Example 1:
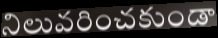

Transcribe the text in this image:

నిలువరించకుండా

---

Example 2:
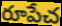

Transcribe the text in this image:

రూపేచ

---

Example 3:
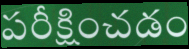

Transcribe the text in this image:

పరీక్షించడం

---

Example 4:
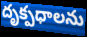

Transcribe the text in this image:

దృక్పధాలను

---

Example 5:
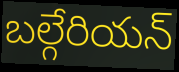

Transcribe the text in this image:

బల్గేరియన్